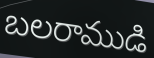
బలరాముడి